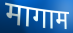
मागाम